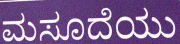
ಮಸೂದೆಯು